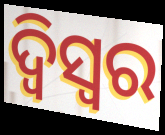
ଦ୍ଵିସ୍ଵର